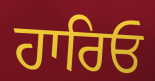
ਹਾਰਿਓ